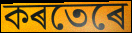
কৰতেৰে